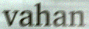
vahan